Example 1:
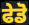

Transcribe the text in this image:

ਫੇਡੋ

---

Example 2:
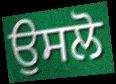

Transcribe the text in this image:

ਉਸਲੋ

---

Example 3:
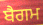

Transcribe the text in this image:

ਬੈਗਮ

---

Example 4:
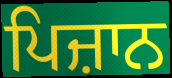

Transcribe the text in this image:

ਪਿਜ਼ਾਨ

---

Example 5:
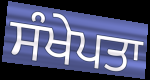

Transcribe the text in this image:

ਸੰਖੇਪਤਾ